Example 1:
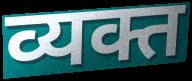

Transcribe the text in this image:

व्यक्त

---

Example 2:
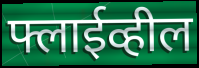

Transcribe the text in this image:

फ्लाईव्हील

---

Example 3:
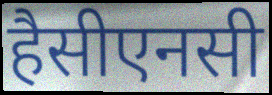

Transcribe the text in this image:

हैसीएनसी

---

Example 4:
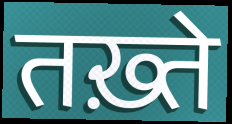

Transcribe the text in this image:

तख़्ते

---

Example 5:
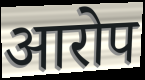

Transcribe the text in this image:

आरोप